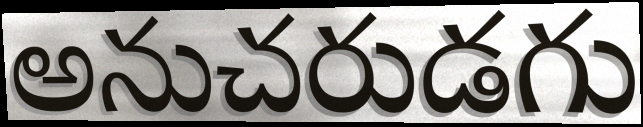
అనుచరుడగు